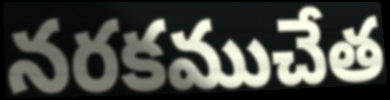
నరకముచేత